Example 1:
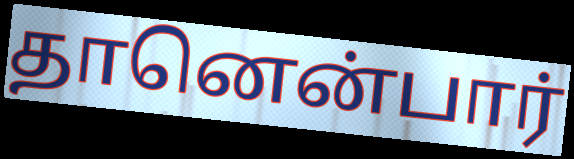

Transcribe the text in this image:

தானென்பார்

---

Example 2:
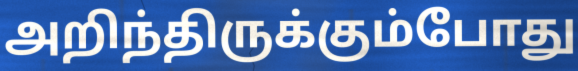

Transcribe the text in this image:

அறிந்திருக்கும்போது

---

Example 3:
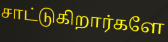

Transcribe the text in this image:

சாட்டுகிறார்களே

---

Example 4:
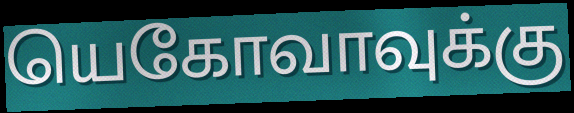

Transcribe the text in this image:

யெகோவாவுக்கு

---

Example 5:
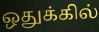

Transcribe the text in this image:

ஒதுக்கில்